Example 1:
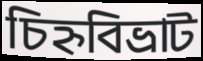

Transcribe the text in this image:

চিহ্নবিভ্রাট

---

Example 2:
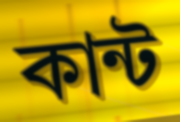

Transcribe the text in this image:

কান্ট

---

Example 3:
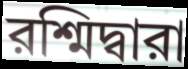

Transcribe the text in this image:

রশ্মিদ্বারা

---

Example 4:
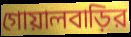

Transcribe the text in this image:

গোয়ালবাড়ির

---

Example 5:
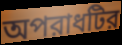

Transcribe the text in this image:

অপরাধটির